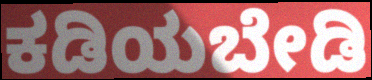
ಕಡಿಯಬೇಡಿ